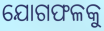
ଯୋଗଫଳକୁ